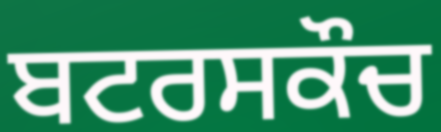
ਬਟਰਸਕੌਚ